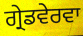
ਗ੍ਰੇਡਵੇਰਵਾ